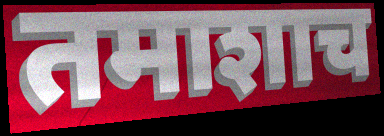
तमाशाच